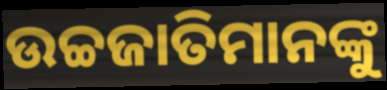
ଉଚ୍ଚଜାତିମାନଙ୍କୁ